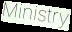
Ministry